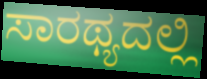
ಸಾರಥ್ಯದಲ್ಲಿ